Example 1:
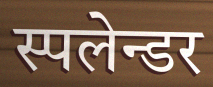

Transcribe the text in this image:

स्पलेन्डर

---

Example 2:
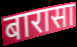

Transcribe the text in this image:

बारासा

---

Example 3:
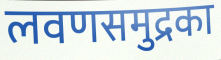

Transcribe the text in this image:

लवणसमुद्रका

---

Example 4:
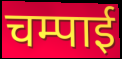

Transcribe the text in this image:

चम्‍पाई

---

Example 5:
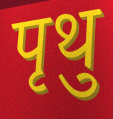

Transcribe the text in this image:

पृथु